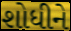
શોધીને